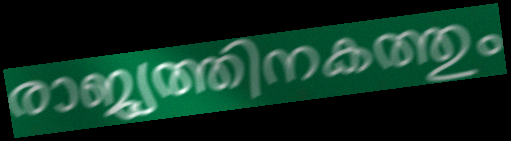
രാജ്യത്തിനകത്തും